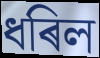
ধৰিল